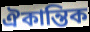
ঐকান্তিক